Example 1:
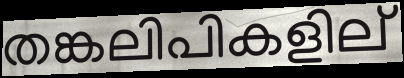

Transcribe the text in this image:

തങ്കലിപികളില്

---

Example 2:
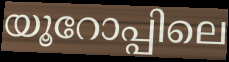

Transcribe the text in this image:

യൂറോപ്പിലെ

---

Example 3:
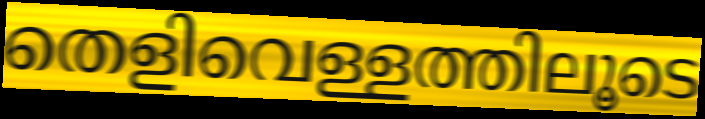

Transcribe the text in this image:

തെളിവെള്ളത്തിലൂടെ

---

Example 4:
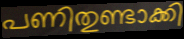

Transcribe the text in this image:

പണിതുണ്ടാക്കി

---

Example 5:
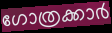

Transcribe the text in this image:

ഗോത്രക്കാർ